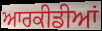
ਆਰਕੀਡੀਆਂ